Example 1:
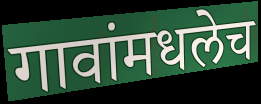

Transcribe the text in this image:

गावांमधलेच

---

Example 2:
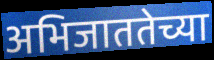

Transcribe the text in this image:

अभिजाततेच्या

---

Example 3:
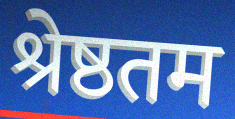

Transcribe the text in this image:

श्रेष्ठतम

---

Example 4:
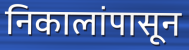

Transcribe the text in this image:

निकालांपासून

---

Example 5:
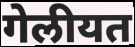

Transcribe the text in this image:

गेलीयत